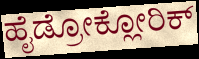
ಹೈಡ್ರೋಕ್ಲೋರಿಕ್